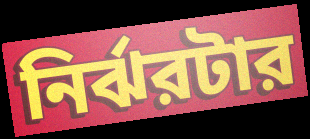
নির্ঝরটার